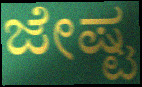
ಜೇಷ್ಟ